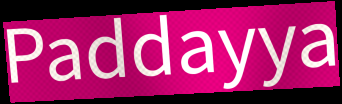
Paddayya